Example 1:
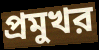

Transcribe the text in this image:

প্রমুখর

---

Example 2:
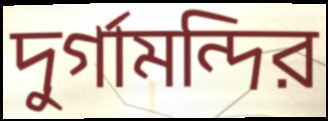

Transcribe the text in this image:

দুর্গামন্দির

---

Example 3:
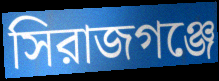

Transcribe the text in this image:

সিরাজগঞ্জে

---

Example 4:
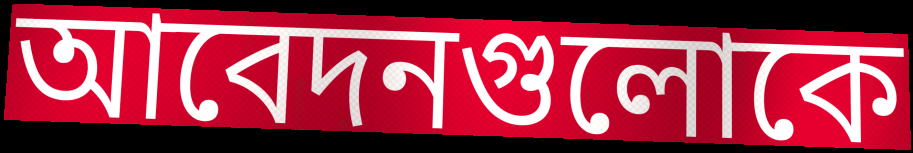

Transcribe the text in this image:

আবেদনগুলোকে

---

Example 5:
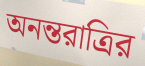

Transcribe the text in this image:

অনন্তরাত্রির